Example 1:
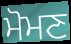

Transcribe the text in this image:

ਮੋਮਣ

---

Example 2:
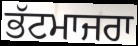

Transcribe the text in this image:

ਭੱਟਮਾਜਰਾ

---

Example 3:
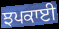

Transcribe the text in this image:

ਝਪਕਾਈ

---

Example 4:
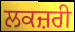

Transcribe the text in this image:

ਲਕਜ਼ਰੀ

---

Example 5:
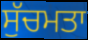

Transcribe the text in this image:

ਸੁੱਚਮਤਾ